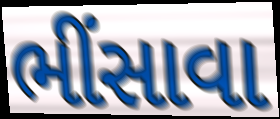
ભીંસાવા